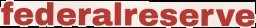
federalreserve